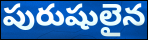
పురుషులైన